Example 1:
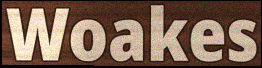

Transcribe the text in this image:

Woakes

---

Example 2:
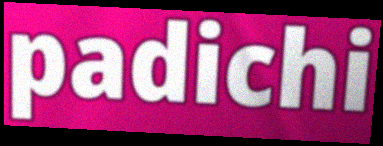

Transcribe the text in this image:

padichi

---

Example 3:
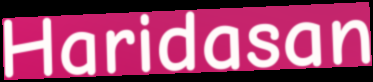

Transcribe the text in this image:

Haridasan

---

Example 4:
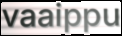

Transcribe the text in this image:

vaaippu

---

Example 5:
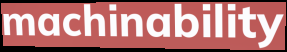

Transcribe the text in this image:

machinability